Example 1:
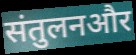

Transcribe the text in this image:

संतुलनऔर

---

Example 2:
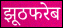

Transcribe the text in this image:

झूठफरेब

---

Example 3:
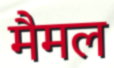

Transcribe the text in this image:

मैमल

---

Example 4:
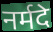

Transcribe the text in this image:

नर्मदे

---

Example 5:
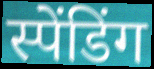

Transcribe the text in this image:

स्पेंडिंग